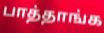
பாத்தாங்க